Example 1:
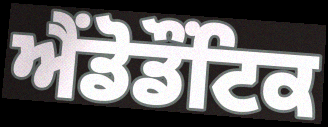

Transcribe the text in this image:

ਐਂਡੋਡੌਂਟਿਕ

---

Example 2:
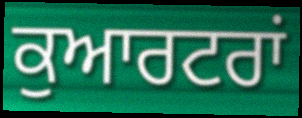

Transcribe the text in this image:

ਕੁਆਰਟਰਾਂ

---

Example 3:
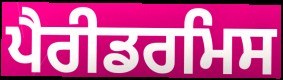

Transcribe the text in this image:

ਪੈਰੀਡਰਮਿਸ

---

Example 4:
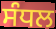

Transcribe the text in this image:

ਸੰਧਲ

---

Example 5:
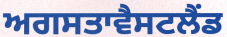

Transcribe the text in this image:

ਅਗਸਤਾਵੈਸਟਲੈਂਡ